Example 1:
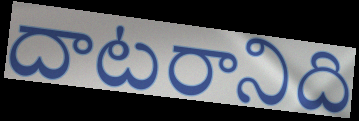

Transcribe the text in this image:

దాటరానిది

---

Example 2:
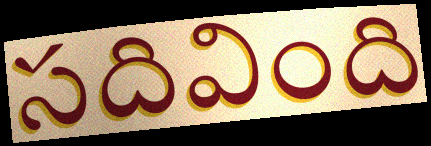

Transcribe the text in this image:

సదివింది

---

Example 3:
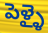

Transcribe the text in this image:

పెళ్ళై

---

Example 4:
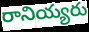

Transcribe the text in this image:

రానియ్యరు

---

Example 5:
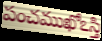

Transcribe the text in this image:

పంచముఖోఽస్తి